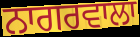
ਨਾਗਰਵਾਲਾ